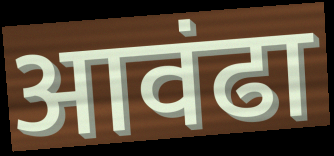
आवंढा